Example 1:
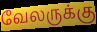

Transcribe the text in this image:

வேலருக்கு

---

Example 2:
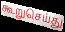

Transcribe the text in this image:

கூறுசெய்து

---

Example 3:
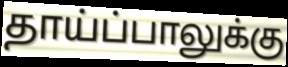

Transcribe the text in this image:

தாய்ப்பாலுக்கு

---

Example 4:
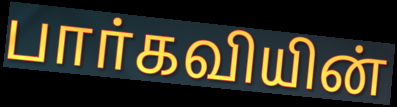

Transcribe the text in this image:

பார்கவியின்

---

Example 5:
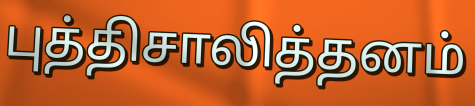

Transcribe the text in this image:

புத்திசாலித்தனம்